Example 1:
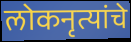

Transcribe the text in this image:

लोकनृत्यांचे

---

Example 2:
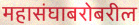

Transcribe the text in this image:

महासंघाबरोबरील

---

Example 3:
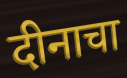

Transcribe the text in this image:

दीनाचा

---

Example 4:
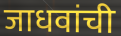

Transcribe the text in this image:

जाधवांची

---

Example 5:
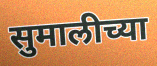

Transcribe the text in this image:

सुमालीच्या